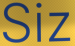
Siz